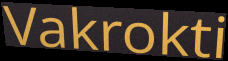
Vakrokti